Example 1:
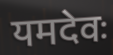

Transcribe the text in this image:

यमदेवः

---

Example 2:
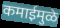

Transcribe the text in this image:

कमाईमुळे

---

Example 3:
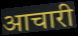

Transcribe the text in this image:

आचारी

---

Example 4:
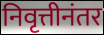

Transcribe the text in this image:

निवृत्तीनंतर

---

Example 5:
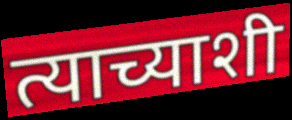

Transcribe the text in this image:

त्याच्याशी